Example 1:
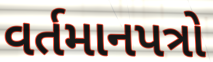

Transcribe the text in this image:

વર્તમાનપત્રો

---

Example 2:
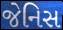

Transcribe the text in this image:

જેનિસ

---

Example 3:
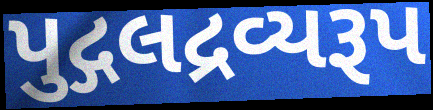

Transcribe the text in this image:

પુદ્ગલદ્રવ્યરૂપ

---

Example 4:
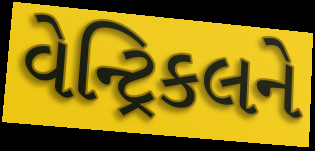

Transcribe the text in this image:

વેન્ટ્રિકલને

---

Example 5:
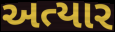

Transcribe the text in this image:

અત્યાર